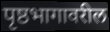
पृष्ठभागावरील